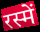
रस्‍में